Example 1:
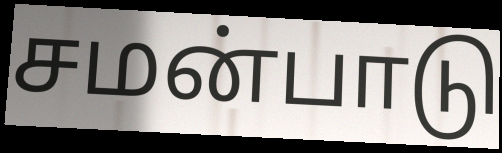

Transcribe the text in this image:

சமன்பாடு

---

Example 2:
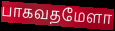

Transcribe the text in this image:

பாகவதமேளா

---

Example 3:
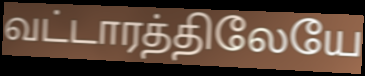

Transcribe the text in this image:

வட்டாரத்திலேயே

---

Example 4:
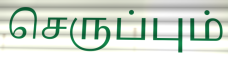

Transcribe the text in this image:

செருப்பும்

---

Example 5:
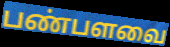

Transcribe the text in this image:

பண்பளவை